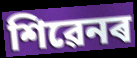
শিৱেনৰ